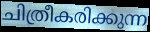
ചിത്രീകരിക്കുന്ന